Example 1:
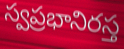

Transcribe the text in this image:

స్వప్రభానిరస్త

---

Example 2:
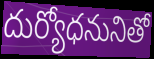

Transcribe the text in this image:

దుర్యోధనునితో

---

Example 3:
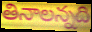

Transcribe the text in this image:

తినాలన్నది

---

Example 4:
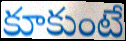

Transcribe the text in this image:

కూకుంటే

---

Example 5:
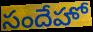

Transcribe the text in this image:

సందేహో